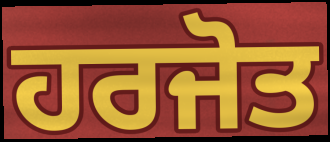
ਹਰਜੋਤ